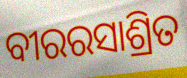
ବୀରରସାଶ୍ରିତ